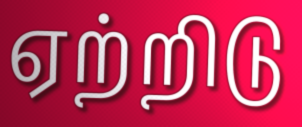
ஏற்றிடு